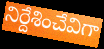
నిర్దేశించేవిగా